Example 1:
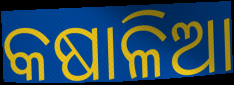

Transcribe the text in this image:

କଷାଳିଆ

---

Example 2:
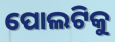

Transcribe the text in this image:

ପୋଲଟିକୁ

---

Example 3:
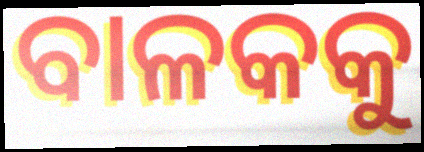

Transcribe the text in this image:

ବାଳକକୁ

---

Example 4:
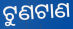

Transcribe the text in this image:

ଟୁଣଟାଣ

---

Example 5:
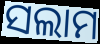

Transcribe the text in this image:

ସଲାମ